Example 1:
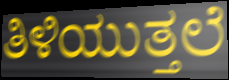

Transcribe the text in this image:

ತಿಳಿಯುತ್ತಲೆ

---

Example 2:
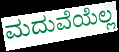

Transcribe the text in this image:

ಮದುವೆಯೆಲ್ಲ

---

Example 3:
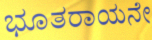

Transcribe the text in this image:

ಭೂತರಾಯನೇ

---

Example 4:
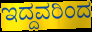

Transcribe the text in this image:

ಇದ್ದವರಿಂದ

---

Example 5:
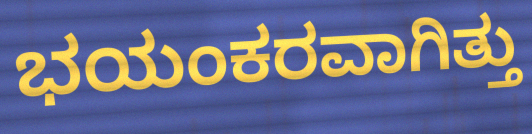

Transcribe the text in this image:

ಭಯಂಕರವಾಗಿತ್ತು